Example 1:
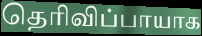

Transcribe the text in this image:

தெரிவிப்பாயாக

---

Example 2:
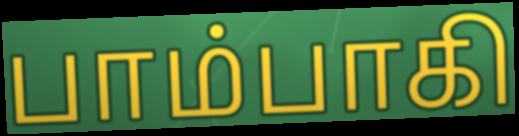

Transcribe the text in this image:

பாம்பாகி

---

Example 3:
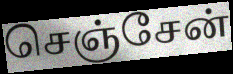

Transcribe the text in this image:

செஞ்சேன்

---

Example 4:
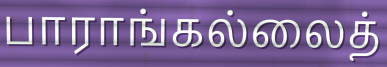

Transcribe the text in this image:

பாராங்கல்லைத்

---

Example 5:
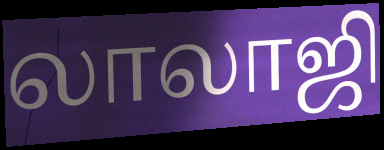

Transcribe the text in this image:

லாலாஜி